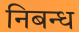
निबन्‍ध